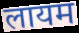
लायम